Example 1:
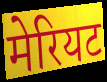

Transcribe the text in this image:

मेरियट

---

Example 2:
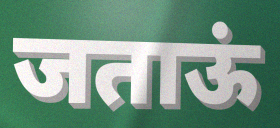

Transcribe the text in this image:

जताऊं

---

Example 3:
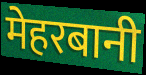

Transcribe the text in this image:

मेहरबानी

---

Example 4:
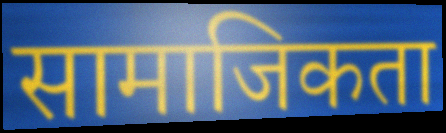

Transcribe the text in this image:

सामाजिकता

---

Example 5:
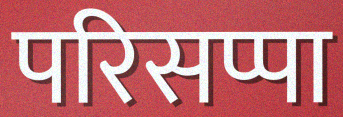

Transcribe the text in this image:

परिसप्पा